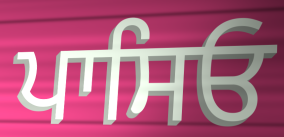
ਪਾਸਿਓ